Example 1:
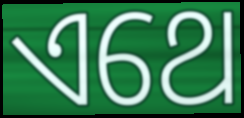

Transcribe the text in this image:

ଏଥେ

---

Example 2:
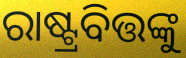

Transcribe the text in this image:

ରାଷ୍ଟ୍ରବିତ୍ତଙ୍କୁ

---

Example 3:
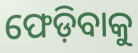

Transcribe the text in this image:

ଫେଡ଼ିବାକୁ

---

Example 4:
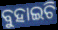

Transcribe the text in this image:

ବୁହାଇଚି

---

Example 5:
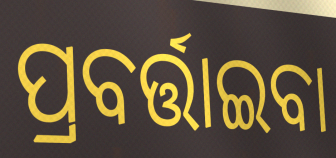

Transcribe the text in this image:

ପ୍ରବର୍ତ୍ତାଇବା